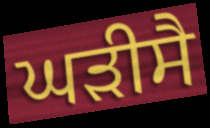
ਘੜੀਸੈ